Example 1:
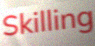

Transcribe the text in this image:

Skilling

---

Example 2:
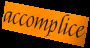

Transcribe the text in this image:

accomplice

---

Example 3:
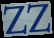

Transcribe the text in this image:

ZZ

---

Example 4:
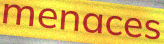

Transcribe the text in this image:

menaces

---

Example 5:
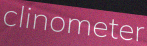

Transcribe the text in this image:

clinometer